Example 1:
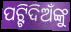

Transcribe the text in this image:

ପଟ୍ଟିଦିଅଁଙ୍କୁ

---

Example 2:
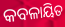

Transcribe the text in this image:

କବଳାୟିତ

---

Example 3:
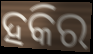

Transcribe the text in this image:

ହକିର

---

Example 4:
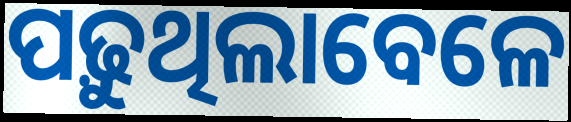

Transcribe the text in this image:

ପଢ଼ୁଥିଲାବେଳେ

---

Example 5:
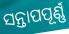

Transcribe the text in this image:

ସନ୍ତାପପୂର୍ଣ୍ଣ